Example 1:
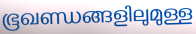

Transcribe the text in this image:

ഭൂഖണ്ഡങ്ങളിലുമുള്ള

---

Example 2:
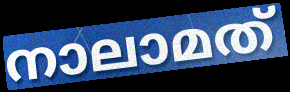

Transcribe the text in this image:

നാലാമത്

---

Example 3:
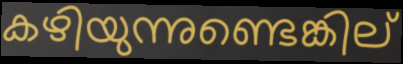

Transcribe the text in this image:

കഴിയുന്നുണ്ടെങ്കില്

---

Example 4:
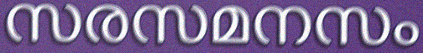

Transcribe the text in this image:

സരസമനസം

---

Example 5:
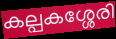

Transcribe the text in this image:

കല്പകശ്ശേരി